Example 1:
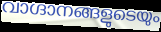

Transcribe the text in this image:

വാഗ്ദാനങ്ങളുടെയും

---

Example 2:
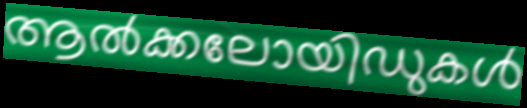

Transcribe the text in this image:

ആൽക്കലോയിഡുകൾ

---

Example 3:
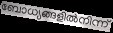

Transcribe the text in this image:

ബോധ്യങ്ങളിൽനിന്ന്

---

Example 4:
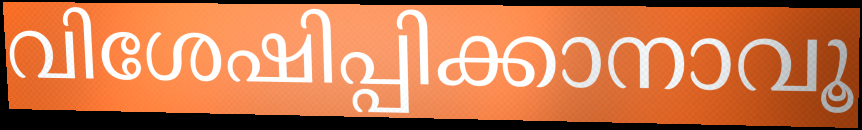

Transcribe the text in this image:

വിശേഷിപ്പിക്കാനാവൂ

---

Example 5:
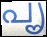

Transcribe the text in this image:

പൄ